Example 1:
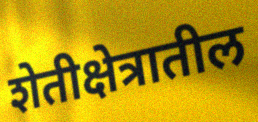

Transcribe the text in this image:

शेतीक्षेत्रातील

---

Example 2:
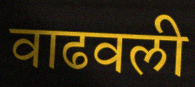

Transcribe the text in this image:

वाढवली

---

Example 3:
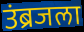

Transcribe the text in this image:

उंब्रजला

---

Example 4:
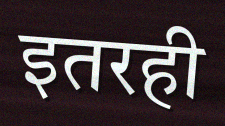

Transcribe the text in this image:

इतरही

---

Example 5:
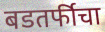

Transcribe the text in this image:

बडतर्फीचा